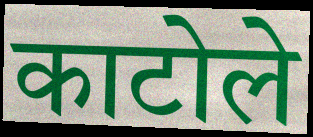
काटोले